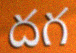
దగ